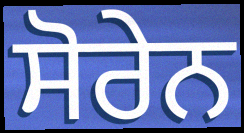
ਸੋਰੇਨ